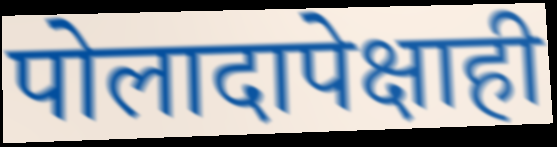
पोलादापेक्षाही